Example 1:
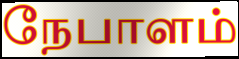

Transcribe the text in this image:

நேபாளம்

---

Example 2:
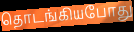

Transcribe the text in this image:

தொடங்கியபோது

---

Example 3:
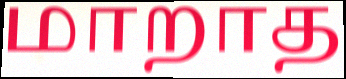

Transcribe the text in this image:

மாறாத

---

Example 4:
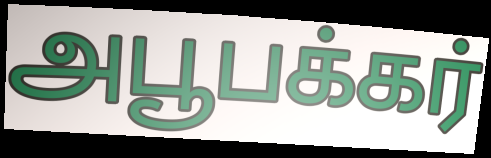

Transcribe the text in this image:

அபூபக்கர்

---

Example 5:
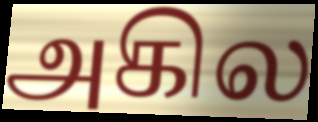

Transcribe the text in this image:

அகில